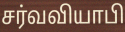
சர்வவியாபி